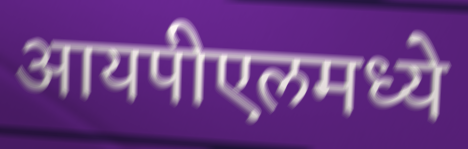
आयपीएलमध्ये